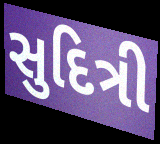
સુદિત્રી